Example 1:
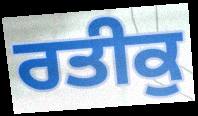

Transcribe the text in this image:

ਰਤੀਕੁ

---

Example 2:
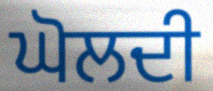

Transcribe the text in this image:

ਘੋਲਦੀ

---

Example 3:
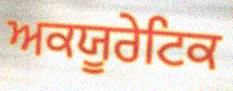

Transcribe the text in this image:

ਅਕਯੂਰੇਟਿਕ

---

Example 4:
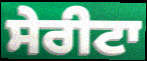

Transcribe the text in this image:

ਸੇਰੀਟਾ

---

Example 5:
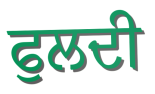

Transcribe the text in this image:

ਫੁਲਦੀ